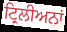
ਟ੍ਰਿਲੀਅਨਾਂ